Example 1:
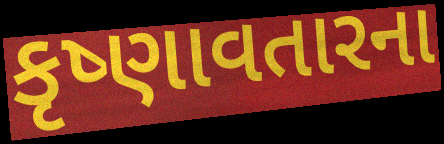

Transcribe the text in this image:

કૃષ્ણાવતારના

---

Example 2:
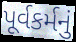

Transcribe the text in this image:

પૂર્વકર્મનું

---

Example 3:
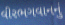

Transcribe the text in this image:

વીરભગવાનનું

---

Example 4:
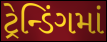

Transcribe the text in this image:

ટ્રેન્ડિંગમાં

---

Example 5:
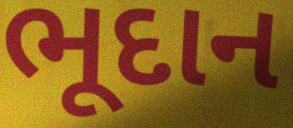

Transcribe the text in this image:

ભૂદાન